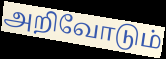
அறிவோடும்